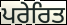
ਪਰੇਰਿਤ